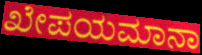
ಖೇಪಯಮಾನಾ